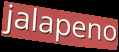
jalapeno